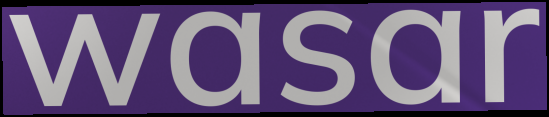
wasar